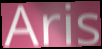
Aris